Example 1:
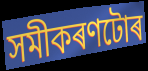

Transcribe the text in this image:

সমীকৰণটোৰ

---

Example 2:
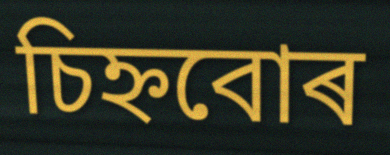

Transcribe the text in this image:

চিহ্নবোৰ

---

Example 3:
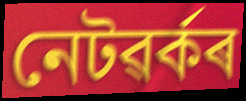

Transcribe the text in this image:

নেটৱৰ্কৰ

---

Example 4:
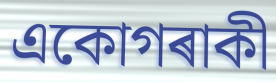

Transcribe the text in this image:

একোগৰাকী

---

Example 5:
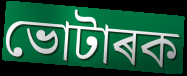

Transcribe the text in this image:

ভোটাৰক